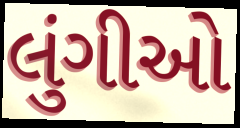
લુંગીઓ